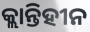
କ୍ଲାନ୍ତିହୀନ